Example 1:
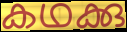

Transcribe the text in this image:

കഥക്കു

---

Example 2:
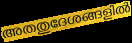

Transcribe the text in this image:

അതതുദേശങ്ങളിൽ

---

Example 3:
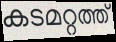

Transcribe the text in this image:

കടമറ്റത്ത്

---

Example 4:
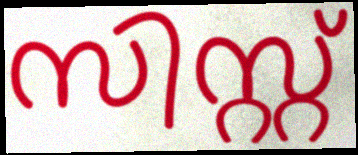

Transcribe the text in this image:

സിസ്റ്റ്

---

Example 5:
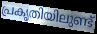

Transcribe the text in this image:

പ്രകൃതിയിലുണ്ട്